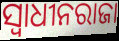
ସ୍ୱାଧୀନରାଜା